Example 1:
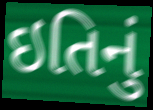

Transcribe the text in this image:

ઇતિનું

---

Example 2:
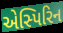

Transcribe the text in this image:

એસ્પિરિન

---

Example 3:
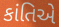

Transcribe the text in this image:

કાંતિએ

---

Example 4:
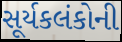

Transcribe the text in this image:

સૂર્યકલંકોની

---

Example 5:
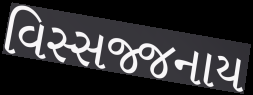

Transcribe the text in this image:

વિસ્સજ્જનાય